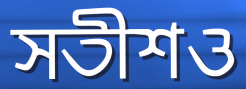
সতীশও